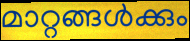
മാറ്റങ്ങൾക്കും